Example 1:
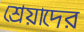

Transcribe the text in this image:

শ্রেয়াদের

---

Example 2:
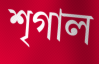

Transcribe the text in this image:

শৃগাল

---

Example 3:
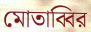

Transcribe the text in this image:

মোতাব্বির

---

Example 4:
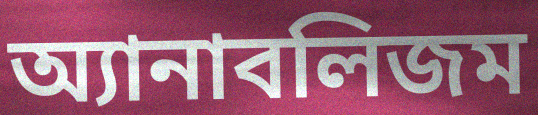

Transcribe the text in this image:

অ্যানাবলিজম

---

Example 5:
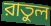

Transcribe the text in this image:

রাতুল